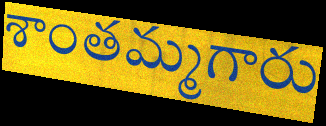
శాంతమ్మగారు